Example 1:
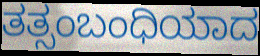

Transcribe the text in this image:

ತತ್ಸಂಬಂಧಿಯಾದ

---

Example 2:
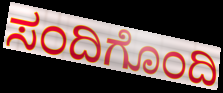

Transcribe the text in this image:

ಸಂದಿಗೊಂದಿ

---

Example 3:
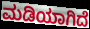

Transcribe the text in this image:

ಮಡಿಯಾಗಿದೆ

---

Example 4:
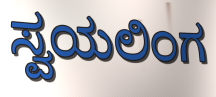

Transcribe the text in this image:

ಸ್ವಯಲಿಂಗ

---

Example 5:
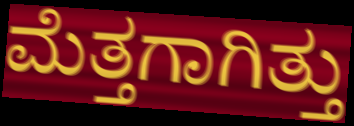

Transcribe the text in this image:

ಮೆತ್ತಗಾಗಿತ್ತು